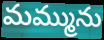
మమ్మును